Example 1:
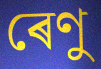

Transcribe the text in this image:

ৰেণু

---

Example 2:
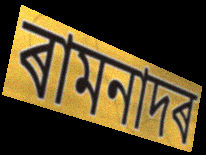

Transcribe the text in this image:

ৰামনাদৰ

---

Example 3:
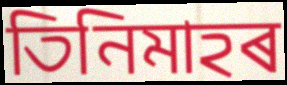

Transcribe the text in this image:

তিনিমাহৰ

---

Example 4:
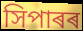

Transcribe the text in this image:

সিপাৰৰ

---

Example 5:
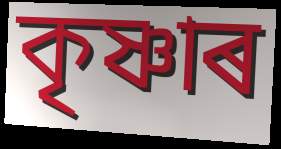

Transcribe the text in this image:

কৃষ্ণাৰ